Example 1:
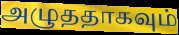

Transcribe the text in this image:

அழுததாகவும்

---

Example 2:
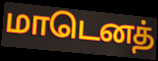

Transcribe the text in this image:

மாடெனத்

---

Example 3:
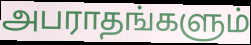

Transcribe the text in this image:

அபராதங்களும்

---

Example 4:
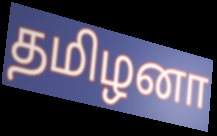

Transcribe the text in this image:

தமிழனா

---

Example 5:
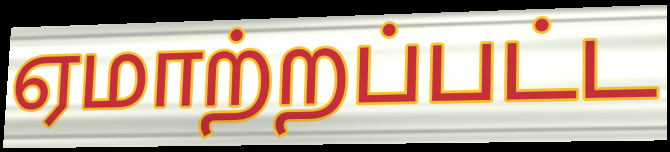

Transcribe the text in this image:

ஏமாற்றப்பட்ட